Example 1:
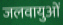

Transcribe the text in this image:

जलवायुओं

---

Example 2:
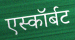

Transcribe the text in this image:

एस्कॉर्बट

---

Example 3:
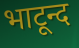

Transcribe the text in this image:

भाटून्द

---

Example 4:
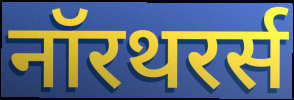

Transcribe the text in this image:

नॉरथरर्स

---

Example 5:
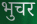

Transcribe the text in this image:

भुचर